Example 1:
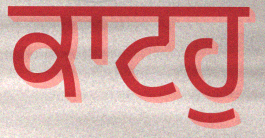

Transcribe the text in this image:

ਕਾਟਹੁ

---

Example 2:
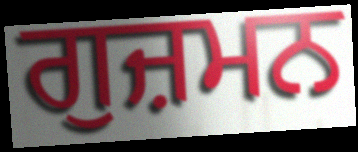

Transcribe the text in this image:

ਗੁਜ਼ਮਨ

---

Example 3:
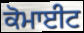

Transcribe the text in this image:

ਕੋਮਾਈਟ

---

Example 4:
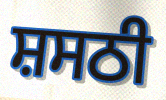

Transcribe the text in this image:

ਸ਼ਸਠੀ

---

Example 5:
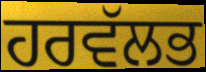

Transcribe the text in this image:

ਹਰਵੱਲਭ